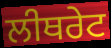
ਲੀਥਰੇਟ